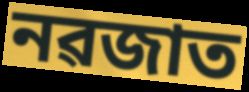
নৱজাত